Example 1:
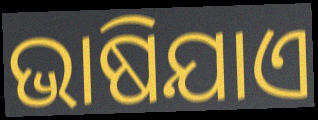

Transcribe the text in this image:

ଭାଷିଯାଏ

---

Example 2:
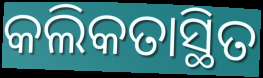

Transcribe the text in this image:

କଲିକତାସ୍ଥିତ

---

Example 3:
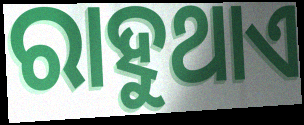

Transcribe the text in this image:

ରାହୁଥାଏ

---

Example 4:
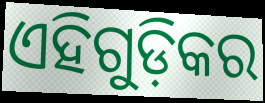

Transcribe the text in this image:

ଏହିଗୁଡ଼ିକର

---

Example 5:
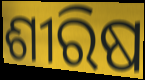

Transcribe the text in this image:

ଶୀରିଷ